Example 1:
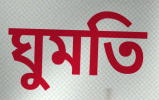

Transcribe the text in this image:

ঘুমতি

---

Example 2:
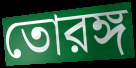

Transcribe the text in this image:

তোরঙ্গ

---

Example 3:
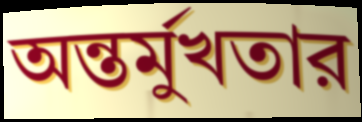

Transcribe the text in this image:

অন্তর্মুখতার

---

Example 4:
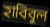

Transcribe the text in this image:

হাবিবুল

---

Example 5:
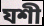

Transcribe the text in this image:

যশী